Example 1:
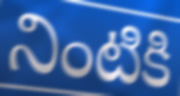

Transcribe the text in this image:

నింటికి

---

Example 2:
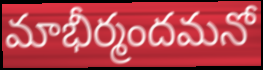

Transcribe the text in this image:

మాభీర్మందమనో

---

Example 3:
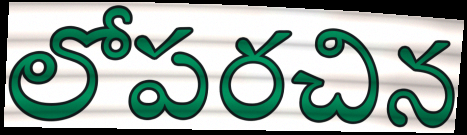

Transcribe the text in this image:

లోపరచిన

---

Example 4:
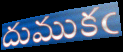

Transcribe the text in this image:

దుముకఁ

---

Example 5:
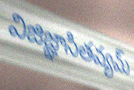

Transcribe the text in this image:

విజిజ్ఞాసితవ్యమ్